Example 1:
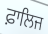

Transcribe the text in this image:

ਫ਼ਾਲਿਜ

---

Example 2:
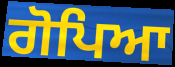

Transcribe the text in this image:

ਗੋਪਿਆ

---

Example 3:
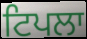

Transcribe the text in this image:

ਟਿਪਲਾ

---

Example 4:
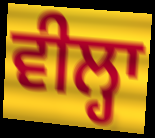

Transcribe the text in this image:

ਵੀਲ੍ਹਾ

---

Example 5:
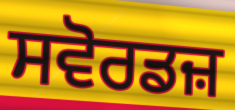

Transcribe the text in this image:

ਸਵੋਰਡਜ਼